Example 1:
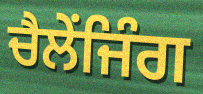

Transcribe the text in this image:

ਚੈਲੇਂਜਿੰਗ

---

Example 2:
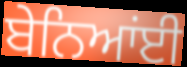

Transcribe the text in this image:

ਬੇਨਿਆਂਈ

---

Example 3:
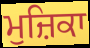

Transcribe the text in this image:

ਮੁਜ਼ਿਕਾ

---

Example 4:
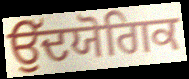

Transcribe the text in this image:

ਉੱਦਯੋਗਿਕ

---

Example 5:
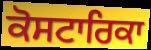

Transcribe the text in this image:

ਕੋਸਟਾਰਿਕਾ